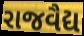
રાજવૈદ્ય